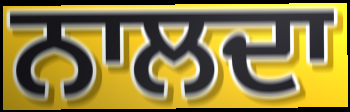
ਨਾਲਦਾ